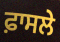
ਫ਼ਾਸਲੇ